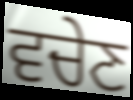
ਵਚੇਣ